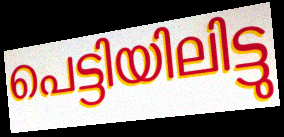
പെട്ടിയിലിട്ടു